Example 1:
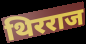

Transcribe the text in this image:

थिरराज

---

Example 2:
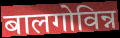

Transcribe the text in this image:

बालगोविन्न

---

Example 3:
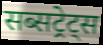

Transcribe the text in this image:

सब्सट्रेट्स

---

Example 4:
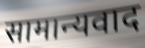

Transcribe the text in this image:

सामान्यवाद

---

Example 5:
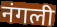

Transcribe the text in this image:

नंगली